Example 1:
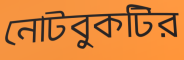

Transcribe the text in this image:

নোটবুকটির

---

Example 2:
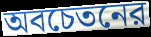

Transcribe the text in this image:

অবচেতনের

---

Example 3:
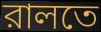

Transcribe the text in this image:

রালতে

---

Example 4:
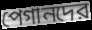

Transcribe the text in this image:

পেগানদের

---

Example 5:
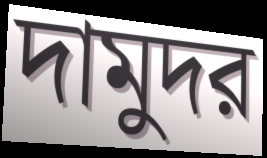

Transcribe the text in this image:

দামুদর